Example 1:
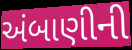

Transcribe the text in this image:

અંબાણીની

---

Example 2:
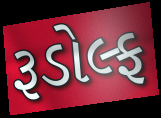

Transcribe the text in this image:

રૂડોલ્ફ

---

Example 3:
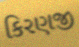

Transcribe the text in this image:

કિરણજી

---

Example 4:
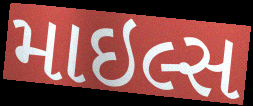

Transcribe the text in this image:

માઇલ્સ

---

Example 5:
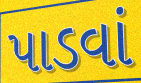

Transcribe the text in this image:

પાડવાં